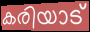
കരിയാട്